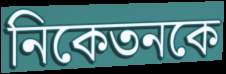
নিকেতনকে